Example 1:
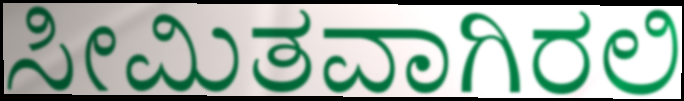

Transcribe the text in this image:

ಸೀಮಿತವಾಗಿರಲಿ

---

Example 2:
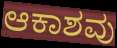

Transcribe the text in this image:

ಆಕಾಶವು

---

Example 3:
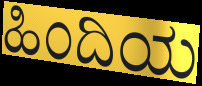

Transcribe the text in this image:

ಹಿಂದಿಯ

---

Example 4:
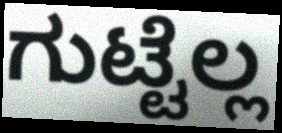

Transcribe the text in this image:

ಗುಟ್ಟೆಲ್ಲ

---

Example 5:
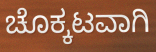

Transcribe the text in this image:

ಚೊಕ್ಕಟವಾಗಿ